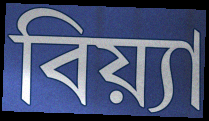
বিয়্যা